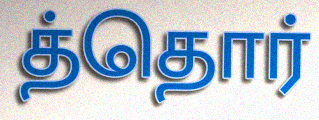
த்தொர்